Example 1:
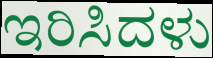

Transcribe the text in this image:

ಇರಿಸಿದಳು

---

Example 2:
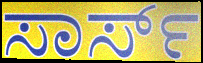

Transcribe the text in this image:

ಸಾರ್ಸ್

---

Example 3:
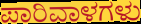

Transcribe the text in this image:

ಪಾರಿವಾಳಗಳು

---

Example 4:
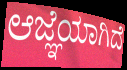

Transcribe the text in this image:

ಆಜ್ಞೆಯಾಗಿದೆ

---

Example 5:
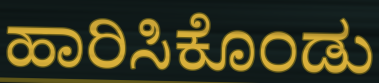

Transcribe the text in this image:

ಹಾರಿಸಿಕೊಂಡು